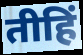
तीहिं